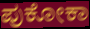
ಪುಕೋಕಾ